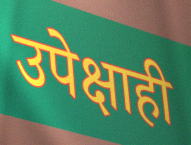
उपेक्षाही